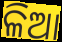
ଳିଆ